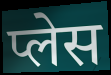
प्लेस